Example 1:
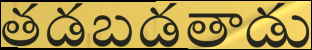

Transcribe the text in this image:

తడబడతాడు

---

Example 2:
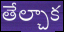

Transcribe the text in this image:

తేల్చాక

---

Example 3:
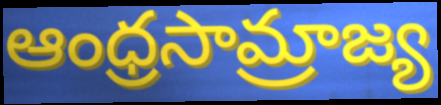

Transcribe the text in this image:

ఆంధ్రసామ్రాజ్య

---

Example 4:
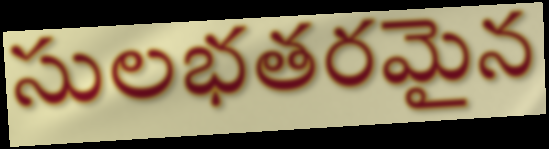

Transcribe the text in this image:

సులభతరమైన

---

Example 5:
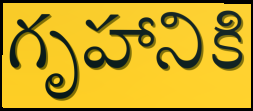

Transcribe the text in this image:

గృహానికి